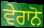
ਵੇਰਾਨੋ